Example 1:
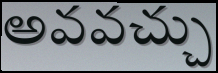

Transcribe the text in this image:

అవవచ్చు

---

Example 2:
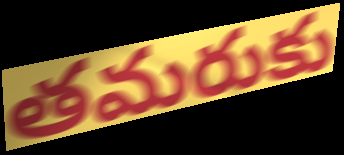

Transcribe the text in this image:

తమరుకు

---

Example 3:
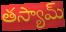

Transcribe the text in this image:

తస్యామ్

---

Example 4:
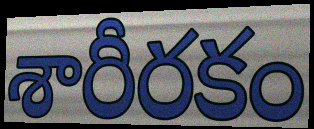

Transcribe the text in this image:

శారీరకం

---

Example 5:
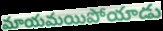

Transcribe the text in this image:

మాయమయిపోయాడు